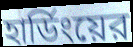
হার্ডিংয়ের